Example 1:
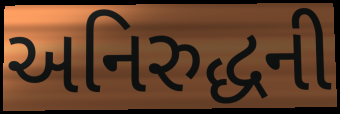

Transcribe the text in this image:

અનિરુદ્ધની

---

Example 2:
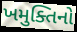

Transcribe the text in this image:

ખમુક્તિનો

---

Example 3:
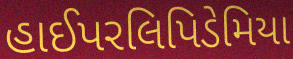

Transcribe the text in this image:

હાઈપરલિપિડેમિયા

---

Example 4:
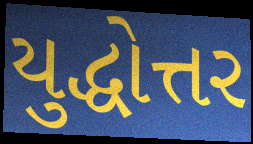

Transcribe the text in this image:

યુદ્ધોત્તર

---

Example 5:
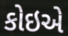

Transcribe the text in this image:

કોઇએ